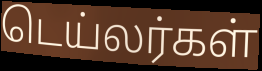
டெய்லர்கள்